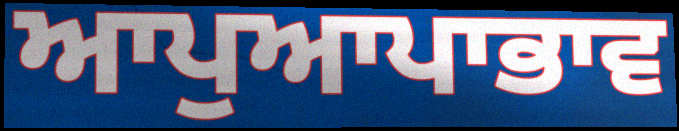
ਆਪੁਆਪਾਭਾਵ